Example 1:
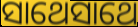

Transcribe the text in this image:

ସାଥେସାଥେ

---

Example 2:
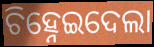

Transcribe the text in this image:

ଚିହ୍ନେଇଦେଲା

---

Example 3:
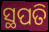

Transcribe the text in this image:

ସ୍ଥପତି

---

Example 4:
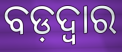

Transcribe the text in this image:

ବଡ଼ଦ୍ୱାର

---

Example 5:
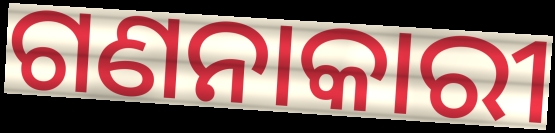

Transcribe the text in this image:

ଗଣନାକାରୀ